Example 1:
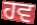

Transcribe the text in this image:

ਹਵ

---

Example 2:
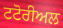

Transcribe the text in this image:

ਟਟੋਰੀਅਲ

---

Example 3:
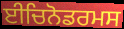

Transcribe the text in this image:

ਈਚਿਨੋਡਰਮਸ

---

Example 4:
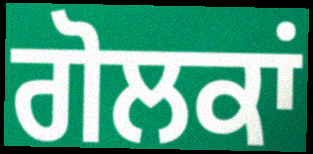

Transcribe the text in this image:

ਗੋਲਕਾਂ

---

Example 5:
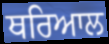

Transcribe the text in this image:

ਥਰਿਆਲ